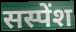
सस्पेंश